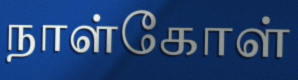
நாள்கோள்